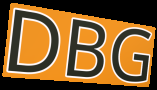
DBG